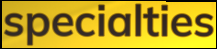
specialties